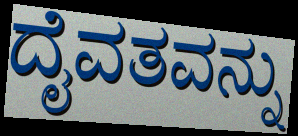
ದೈವತವನ್ನು